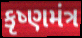
કૃષ્ણમંત્ર